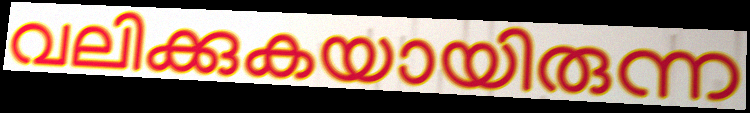
വലിക്കുകയായിരുന്ന